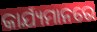
କାର୍ଯ୍ୟମାନରେ